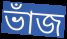
ভাঁজ